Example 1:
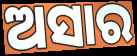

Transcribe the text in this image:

ଅସାର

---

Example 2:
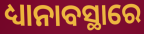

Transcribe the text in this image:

ଧ୍ୟାନାବସ୍ଥାରେ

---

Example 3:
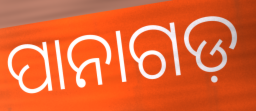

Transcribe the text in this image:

ପାନାଗଡ଼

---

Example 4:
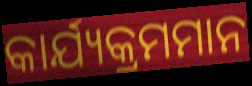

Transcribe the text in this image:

କାର୍ଯ୍ୟକ୍ରମମାନ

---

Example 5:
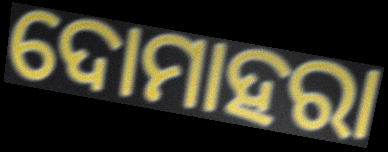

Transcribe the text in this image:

ଦୋମାହରା